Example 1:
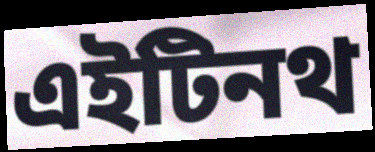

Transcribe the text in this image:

এইটিনথ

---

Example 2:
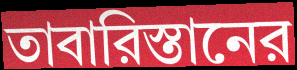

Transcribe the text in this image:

তাবারিস্তানের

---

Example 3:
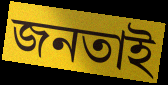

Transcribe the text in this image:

জনতাই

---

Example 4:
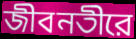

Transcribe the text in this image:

জীবনতীরে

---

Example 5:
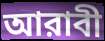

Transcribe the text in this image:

আরাবী